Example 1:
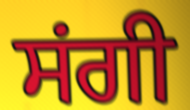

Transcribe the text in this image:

ਸਂਗੀ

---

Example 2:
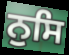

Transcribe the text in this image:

ਨੁਸਿ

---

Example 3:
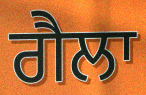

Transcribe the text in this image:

ਗੈਲਾ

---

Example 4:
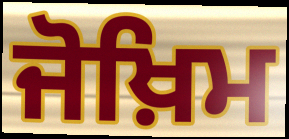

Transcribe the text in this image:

ਜੋਖ਼ਿਮ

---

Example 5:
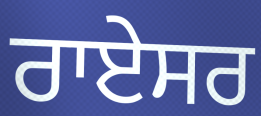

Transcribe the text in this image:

ਰਾਏਸਰ